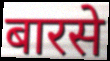
बारसे